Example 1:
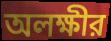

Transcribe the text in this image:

অলক্ষীর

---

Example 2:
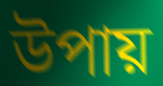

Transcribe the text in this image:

উপায়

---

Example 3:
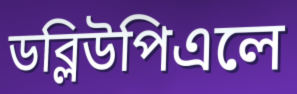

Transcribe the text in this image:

ডব্লিউপিএলে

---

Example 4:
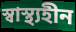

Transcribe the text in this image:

স্বাস্থ্যহীন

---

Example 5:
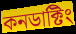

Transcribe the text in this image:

কনডাক্টিং